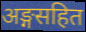
अङ्गसहित